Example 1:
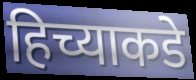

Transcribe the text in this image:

हिच्याकडे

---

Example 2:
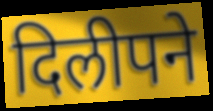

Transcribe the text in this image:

दिलीपने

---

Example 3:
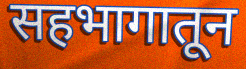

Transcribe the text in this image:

सहभागातून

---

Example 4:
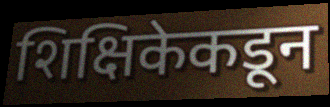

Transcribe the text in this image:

शिक्षिकेकडून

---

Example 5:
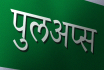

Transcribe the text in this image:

पुलअप्स